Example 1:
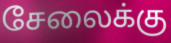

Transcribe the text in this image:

சேலைக்கு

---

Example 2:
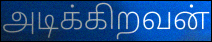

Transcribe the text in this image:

அடிக்கிறவன்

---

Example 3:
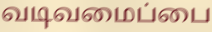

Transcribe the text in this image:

வடிவமைப்பை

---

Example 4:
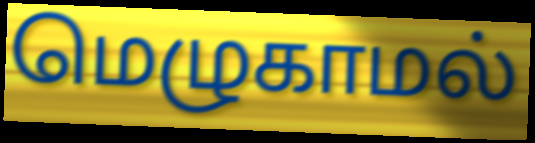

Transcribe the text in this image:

மெழுகாமல்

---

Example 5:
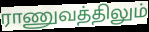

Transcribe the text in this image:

ராணுவத்திலும்